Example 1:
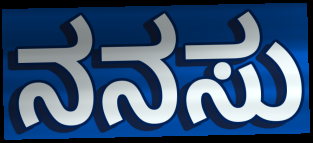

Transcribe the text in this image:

ನನಸು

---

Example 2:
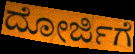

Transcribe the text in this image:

ದೋರ್ಜಿಗೆ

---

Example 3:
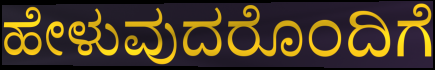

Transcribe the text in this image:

ಹೇಳುವುದರೊಂದಿಗೆ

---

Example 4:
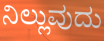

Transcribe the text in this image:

ನಿಲ್ಲುವುದು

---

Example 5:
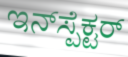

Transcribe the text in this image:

ಇನ್‌ಸ್ಪೆಕ್ಟರ್